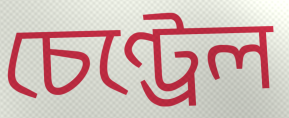
চেণ্ট্ৰেল